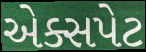
એક્સપેટ